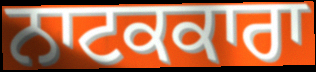
ਨਾਟਕਕਾਰਾ